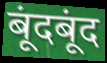
बूंदबूंद